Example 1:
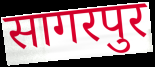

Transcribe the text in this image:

सागरपुर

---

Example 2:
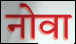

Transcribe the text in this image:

नोवा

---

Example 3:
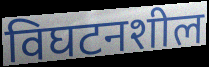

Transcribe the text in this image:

विघटनशील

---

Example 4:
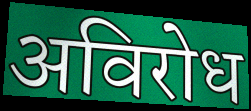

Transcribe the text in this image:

अविरोध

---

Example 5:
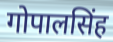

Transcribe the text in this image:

गोपालसिंह